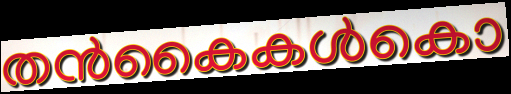
തൻകൈകൾകൊ